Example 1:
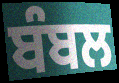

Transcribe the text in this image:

ਬੰਬਲ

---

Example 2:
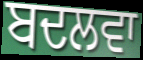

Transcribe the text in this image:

ਬਦਲਵਾ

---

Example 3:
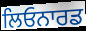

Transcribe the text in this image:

ਲਿਓਨਾਰਡ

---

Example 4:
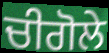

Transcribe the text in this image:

ਚੀਗੋਲੇ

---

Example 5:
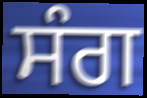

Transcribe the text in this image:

ਸੰਗ